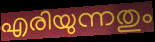
എരിയുന്നതും